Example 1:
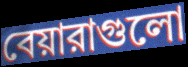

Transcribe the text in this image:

বেয়ারাগুলো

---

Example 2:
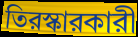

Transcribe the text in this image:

তিরস্কারকারী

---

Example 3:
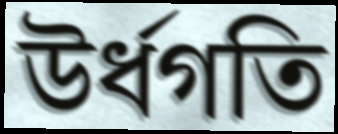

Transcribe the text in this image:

উর্ধগতি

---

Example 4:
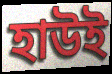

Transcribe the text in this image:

হাউই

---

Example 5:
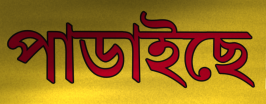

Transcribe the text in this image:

পাডাইছে